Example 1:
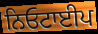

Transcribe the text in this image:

ਨਿਓਟਾਈਪ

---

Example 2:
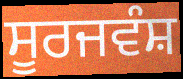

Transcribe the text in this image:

ਸੂਰਜਵੰਸ਼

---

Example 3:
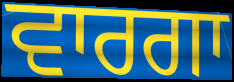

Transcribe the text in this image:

ਵਾਰਗਾ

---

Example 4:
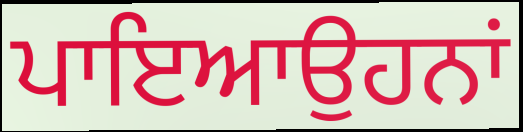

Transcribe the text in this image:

ਪਾਇਆਉਹਨਾਂ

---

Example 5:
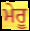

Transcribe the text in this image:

ਮੇਰੂ